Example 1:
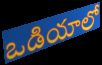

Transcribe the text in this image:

ఒడియాలో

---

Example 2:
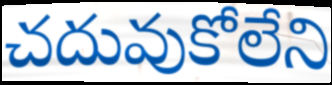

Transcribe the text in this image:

చదువుకోలేని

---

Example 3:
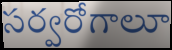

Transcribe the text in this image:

సర్వరోగాలూ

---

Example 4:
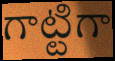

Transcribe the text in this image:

గాట్టిగా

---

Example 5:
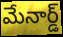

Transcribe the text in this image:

మేనార్డ్